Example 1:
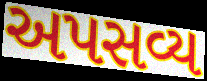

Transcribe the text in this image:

અપસવ્ય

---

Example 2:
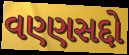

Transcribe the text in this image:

વણ્ણસદ્દો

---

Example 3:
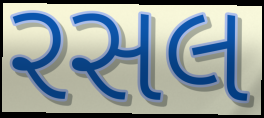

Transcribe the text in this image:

રસલ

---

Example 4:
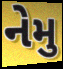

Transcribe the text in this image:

નેમુ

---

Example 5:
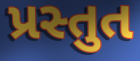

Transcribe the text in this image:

પ્રસ્તુત